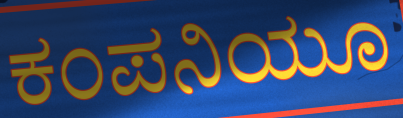
ಕಂಪನಿಯೂ